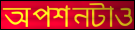
অপশনটাও